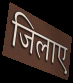
जिलाए